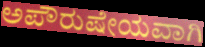
ಅಪೌರುಷೇಯವಾಗಿ